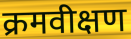
क्रमवीक्षण